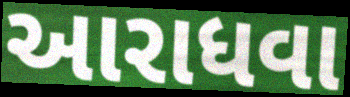
આરાધવા